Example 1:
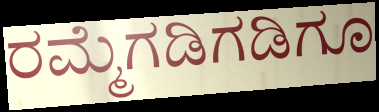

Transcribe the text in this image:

ರಮ್ಮೆಗಡಿಗಡಿಗೂ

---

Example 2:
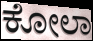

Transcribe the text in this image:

ಕೋಲಾ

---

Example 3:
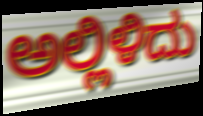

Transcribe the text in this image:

ಅಲ್ಲಿಳಿದು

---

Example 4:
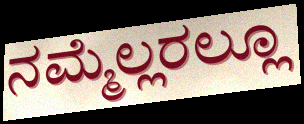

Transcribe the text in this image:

ನಮ್ಮೆಲ್ಲರಲ್ಲೂ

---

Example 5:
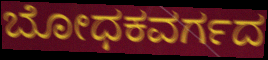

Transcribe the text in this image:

ಬೋಧಕವರ್ಗದ